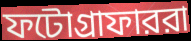
ফটোগ্রাফাররা